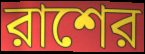
রাশের